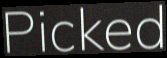
Picked